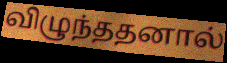
விழுந்ததனால்